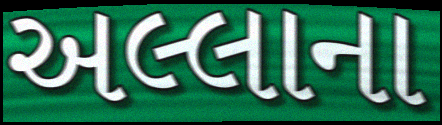
અલ્લાના